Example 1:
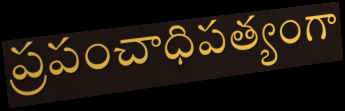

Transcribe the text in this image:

ప్రపంచాధిపత్యంగా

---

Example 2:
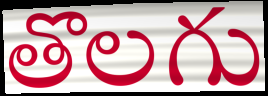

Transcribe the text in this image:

తొలగు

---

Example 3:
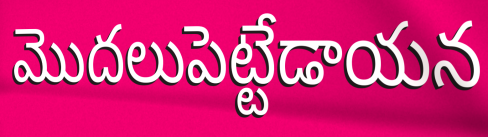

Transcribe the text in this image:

మొదలుపెట్టేడాయన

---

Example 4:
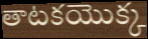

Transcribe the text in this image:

తాటకయొక్క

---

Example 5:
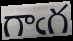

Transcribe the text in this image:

గాఁగ